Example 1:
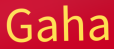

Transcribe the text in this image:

Gaha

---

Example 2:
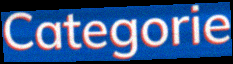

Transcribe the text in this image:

Categorie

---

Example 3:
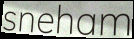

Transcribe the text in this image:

sneham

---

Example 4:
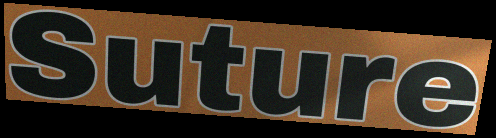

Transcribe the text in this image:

Suture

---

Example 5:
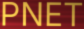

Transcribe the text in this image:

PNET